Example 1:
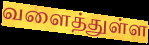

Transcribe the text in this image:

வளைத்துள்ள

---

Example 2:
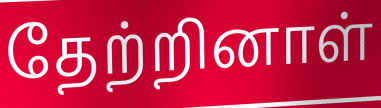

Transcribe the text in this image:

தேற்றினாள்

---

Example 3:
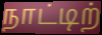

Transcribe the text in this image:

நாட்டிற்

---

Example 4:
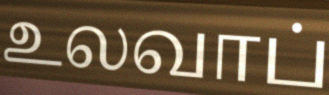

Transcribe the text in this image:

உலவாப்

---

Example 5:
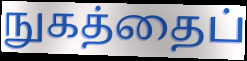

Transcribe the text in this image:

நுகத்தைப்